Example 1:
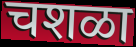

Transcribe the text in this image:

चशळा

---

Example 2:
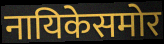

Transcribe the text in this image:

नायिकेसमोर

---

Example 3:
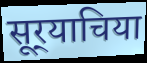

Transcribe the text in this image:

सूर्याचिया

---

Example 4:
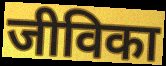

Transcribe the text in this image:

जीविका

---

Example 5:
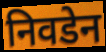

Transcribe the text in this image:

निवडेन